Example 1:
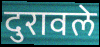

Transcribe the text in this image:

दुरावले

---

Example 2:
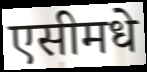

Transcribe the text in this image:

एसीमधे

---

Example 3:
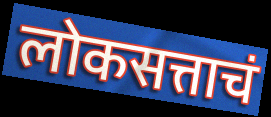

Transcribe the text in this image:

लोकसत्ताचं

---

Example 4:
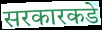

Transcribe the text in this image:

सरकारकडे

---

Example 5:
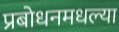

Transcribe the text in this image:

प्रबोधनमधल्या